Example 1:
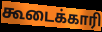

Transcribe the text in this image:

கூடைக்காரி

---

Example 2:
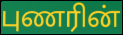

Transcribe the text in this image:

புணரின்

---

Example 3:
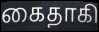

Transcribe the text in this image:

கைதாகி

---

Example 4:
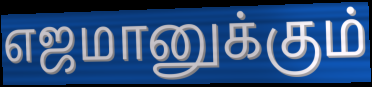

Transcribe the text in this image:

எஜமானுக்கும்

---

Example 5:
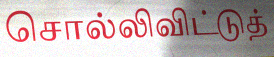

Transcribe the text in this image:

சொல்லிவிட்டுத்